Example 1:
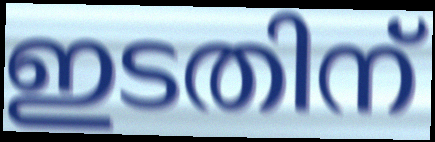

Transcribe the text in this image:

ഇടതിന്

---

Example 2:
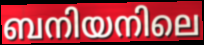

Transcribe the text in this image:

ബനിയനിലെ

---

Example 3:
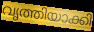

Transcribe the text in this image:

വൃത്തിയാക്കി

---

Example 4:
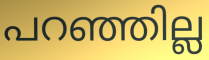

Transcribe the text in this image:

പറഞ്ഞില്ല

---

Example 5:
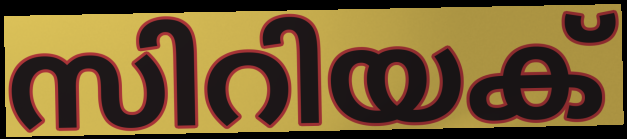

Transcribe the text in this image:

സിറിയക്